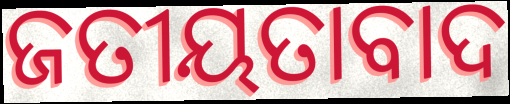
ଜତୀୟତାବାଦ